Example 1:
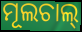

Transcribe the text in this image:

ମୂଲଚାଲ୍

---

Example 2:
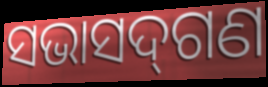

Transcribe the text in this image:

ସଭାସଦ୍‍ଗଣ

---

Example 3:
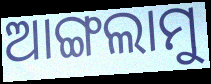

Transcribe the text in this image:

ଆଙ୍ଗଲାମୁ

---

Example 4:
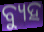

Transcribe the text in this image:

ବ୍ୟୁହ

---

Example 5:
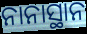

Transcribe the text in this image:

ନାନାସ୍ଥାନ